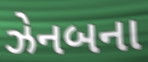
ઝેનબના